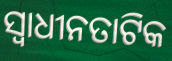
ସ୍ୱାଧୀନତାଟିକ